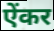
ऐंकर